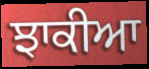
ਝਾਕੀਆ